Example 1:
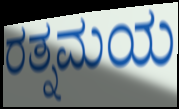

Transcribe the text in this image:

ರತ್ನಮಯ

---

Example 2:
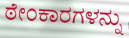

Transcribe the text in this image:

ಠೇಂಕಾರಗಳನ್ನು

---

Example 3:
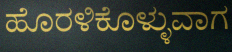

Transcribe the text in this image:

ಹೊರಳಿಕೊಳ್ಳುವಾಗ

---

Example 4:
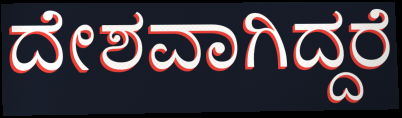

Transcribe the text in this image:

ದೇಶವಾಗಿದ್ದರೆ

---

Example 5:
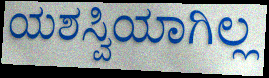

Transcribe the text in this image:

ಯಶಸ್ವಿಯಾಗಿಲ್ಲ